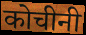
कोचीनी